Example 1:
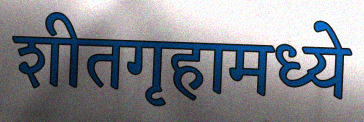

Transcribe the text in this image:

शीतगृहामध्ये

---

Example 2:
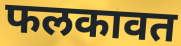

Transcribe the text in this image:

फलकावत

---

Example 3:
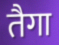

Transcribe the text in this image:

तैगा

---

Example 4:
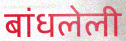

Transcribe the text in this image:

बांधलेली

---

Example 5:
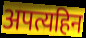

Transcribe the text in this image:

अपत्यहिन